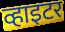
व्हाइटर